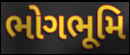
ભોગભૂમિ